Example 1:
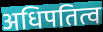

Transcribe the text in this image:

अधिपतित्व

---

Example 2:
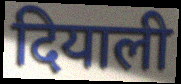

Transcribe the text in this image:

दियाली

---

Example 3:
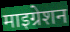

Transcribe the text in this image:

माइग्रेशन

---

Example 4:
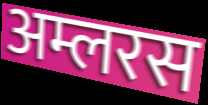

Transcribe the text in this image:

अम्लरस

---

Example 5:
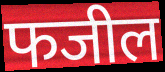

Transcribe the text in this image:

फजील